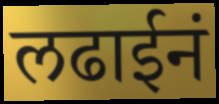
लढाईनं